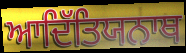
ਆਦਿੱਤਿਯਨਾਥ